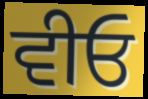
ਵੀਓ